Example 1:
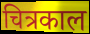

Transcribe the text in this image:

चित्रकाल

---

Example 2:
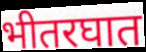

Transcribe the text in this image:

भीतरघात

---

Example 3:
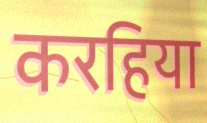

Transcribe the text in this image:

करहिया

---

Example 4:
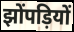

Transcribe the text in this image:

झोंपड़ियों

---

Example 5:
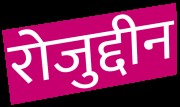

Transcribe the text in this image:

रोजुद्दीन